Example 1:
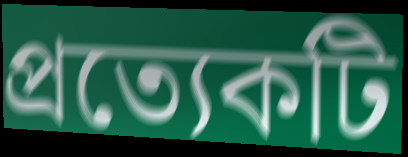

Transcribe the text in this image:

প্ৰত্যেকটি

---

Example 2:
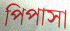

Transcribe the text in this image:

পিপাসা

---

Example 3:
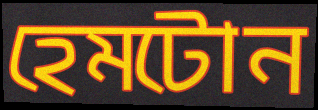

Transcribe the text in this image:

হেমটোন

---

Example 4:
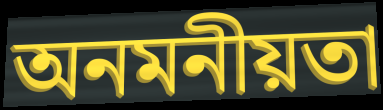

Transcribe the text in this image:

অনমনীয়তা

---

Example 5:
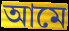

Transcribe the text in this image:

আমে